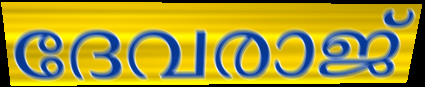
ദേവരാജ്